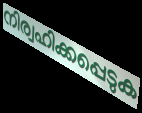
നിര്വഹിക്കപ്പെടുക